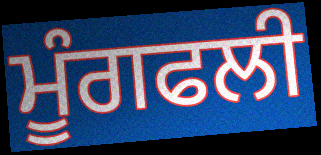
ਮੂੰਗਫਲੀ